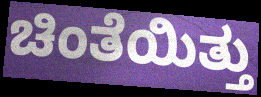
ಚಿಂತೆಯಿತ್ತು